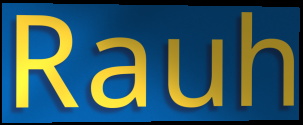
Rauh